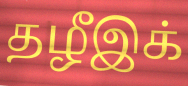
தழீஇக்